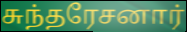
சுந்தரேசனார்